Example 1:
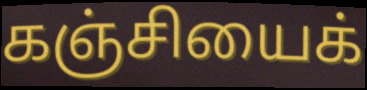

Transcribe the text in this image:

கஞ்சியைக்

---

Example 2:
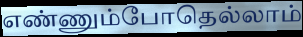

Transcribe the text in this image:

எண்ணும்போதெல்லாம்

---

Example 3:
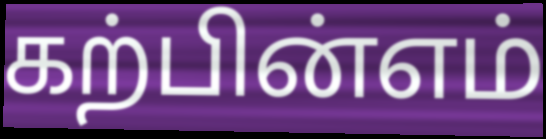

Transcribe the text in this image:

கற்பின்எம்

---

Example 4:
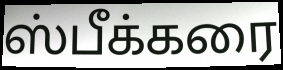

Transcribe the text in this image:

ஸ்பீக்கரை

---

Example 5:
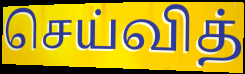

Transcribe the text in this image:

செய்வித்